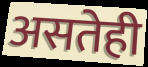
असतेही